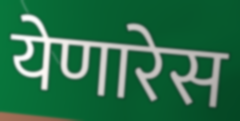
येणारेस